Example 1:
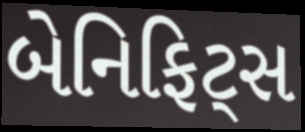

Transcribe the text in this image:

બેનિફિટ્સ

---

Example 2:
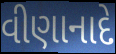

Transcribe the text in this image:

વીણાનાદે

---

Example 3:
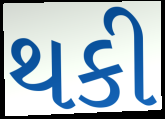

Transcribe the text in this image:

થકી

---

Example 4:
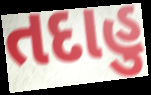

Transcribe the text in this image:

તદાહુ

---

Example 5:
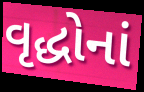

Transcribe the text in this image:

વૃદ્ધોનાં